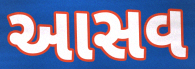
આસવ